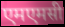
एमएमसी